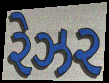
રેઝર